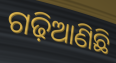
ଗଢ଼ିଆଣିଛି